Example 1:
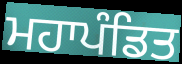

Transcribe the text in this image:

ਮਹਾਪੰਡਿਤ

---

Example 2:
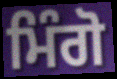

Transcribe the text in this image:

ਮਿੰਗੋ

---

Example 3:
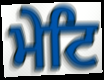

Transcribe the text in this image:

ਮੇਟਿ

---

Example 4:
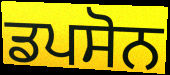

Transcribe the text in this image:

ਡਪਸੋਨ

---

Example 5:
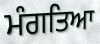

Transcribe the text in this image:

ਮੰਗਤਿਆ